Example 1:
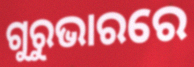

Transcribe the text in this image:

ଗୁରୁଭାରରେ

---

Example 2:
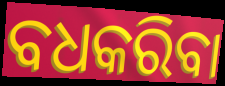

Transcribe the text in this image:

ବଧକରିବା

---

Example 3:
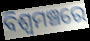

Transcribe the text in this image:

ବିଶ୍ୱମଞ୍ଚରେ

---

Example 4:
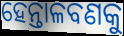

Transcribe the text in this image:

ହେନ୍ତାଳବଣକୁ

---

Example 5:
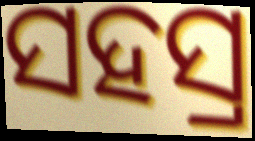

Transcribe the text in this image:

ସହସ୍ର